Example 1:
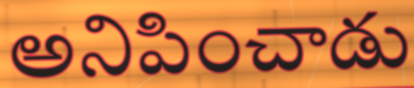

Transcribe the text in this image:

అనిపించాడు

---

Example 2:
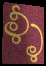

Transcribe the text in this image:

ళ్ళీ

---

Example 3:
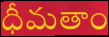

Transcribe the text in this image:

ధీమతాం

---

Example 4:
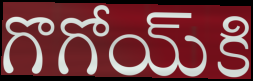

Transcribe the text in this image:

గొగోయ్‌కి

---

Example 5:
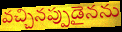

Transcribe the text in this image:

వచ్చినప్పుడైనను